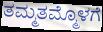
ತಮ್ಮತಮ್ಮೊಳಗೆ